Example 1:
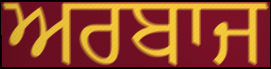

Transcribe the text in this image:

ਅਰਬਾਜ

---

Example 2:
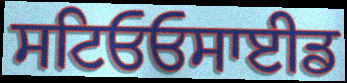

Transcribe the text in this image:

ਸਟਿਓਓਸਾਈਡ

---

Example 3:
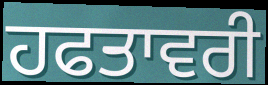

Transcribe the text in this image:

ਹਫਤਾਵਰੀ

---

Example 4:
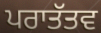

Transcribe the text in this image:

ਪਰਾਤੱਤਵ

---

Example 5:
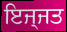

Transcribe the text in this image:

ਇਜ੍ਜਤ